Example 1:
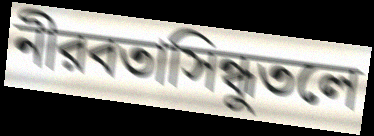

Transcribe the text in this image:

নীরবতাসিন্ধুতলে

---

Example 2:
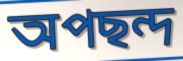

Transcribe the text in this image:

অপছন্দ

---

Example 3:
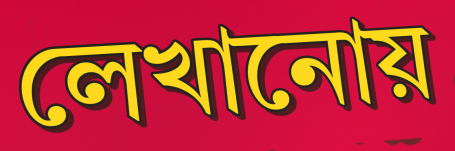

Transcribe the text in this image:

লেখানোয়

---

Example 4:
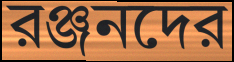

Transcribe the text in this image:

রঞ্জনদের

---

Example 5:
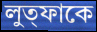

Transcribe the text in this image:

লুত্ফাকে